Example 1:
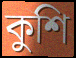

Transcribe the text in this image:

কুশি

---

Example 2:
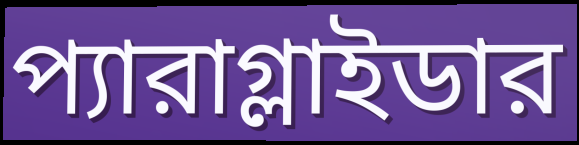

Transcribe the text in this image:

প্যারাগ্লাইডার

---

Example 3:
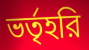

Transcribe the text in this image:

ভর্তৃহরি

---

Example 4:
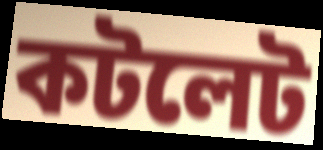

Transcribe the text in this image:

কটলেট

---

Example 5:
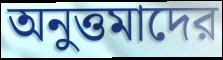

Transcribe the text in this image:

অনুত্তমাদের